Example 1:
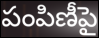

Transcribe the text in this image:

పంపిణీపై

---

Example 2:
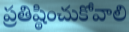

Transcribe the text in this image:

ప్రతిష్ఠించుకోవాలి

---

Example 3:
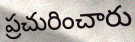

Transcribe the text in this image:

ప్రచురించారు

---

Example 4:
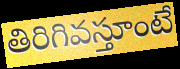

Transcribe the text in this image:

తిరిగివస్తూంటే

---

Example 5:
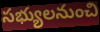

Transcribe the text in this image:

సభ్యులనుంచి